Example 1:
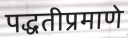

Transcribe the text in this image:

पद्धतीप्रमाणे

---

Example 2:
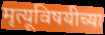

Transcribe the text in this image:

मृत्यूविषयीच्या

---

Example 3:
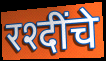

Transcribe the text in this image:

रश्दींचे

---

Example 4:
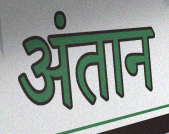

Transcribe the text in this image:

अंतान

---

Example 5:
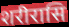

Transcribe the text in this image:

शरीरासि